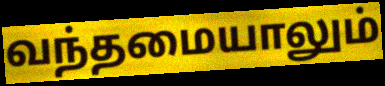
வந்தமையாலும்